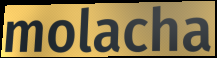
molacha